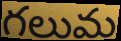
గలుమ